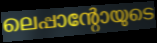
ലെപ്പാന്റോയുടെ